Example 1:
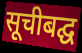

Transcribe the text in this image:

सूचीबद्घ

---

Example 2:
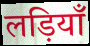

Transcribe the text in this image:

लड़ियाँ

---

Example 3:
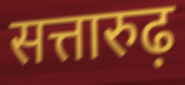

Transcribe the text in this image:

सत्तारुढ़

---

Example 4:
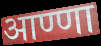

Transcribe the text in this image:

आण्णा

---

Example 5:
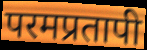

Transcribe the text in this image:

परमप्रतापी